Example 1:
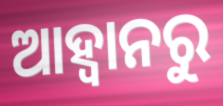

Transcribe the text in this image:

ଆହ୍ବାନରୁ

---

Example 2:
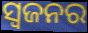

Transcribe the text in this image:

ସ୍ୱଜନର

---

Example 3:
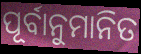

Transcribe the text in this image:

ପୂର୍ବାନୁମାନିତ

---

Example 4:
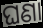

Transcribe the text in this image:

ଘଣା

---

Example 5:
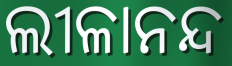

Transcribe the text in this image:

ଲୀଳାନନ୍ଦ